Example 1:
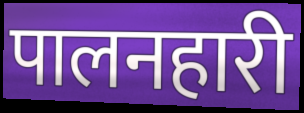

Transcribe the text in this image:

पालनहारी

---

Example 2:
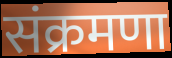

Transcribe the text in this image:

संक्रमणा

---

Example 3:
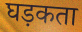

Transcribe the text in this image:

घड़कता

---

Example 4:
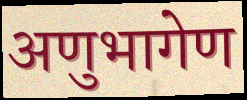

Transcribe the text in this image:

अणुभागेण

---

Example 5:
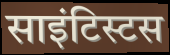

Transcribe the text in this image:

साइंटिस्टस